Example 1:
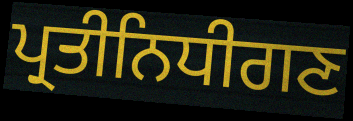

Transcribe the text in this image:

ਪ੍ਰਤੀਨਿਧੀਗਣ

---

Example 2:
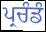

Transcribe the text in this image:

ਪ੍ਰਚੰਡੰ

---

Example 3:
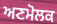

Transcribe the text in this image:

ਅਣਮੋਲਕ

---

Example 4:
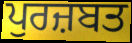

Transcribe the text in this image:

ਪੁਰਜ਼ਬਤ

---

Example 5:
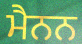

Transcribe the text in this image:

ਮੈਨਨ